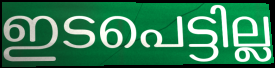
ഇടപെട്ടില്ല